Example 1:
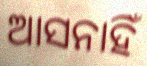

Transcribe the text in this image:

ଆସନାହିଁ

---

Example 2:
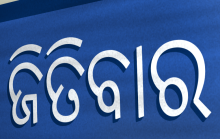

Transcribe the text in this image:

ଜିତିବାର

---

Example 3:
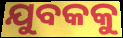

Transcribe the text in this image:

ଯୁବକକୁ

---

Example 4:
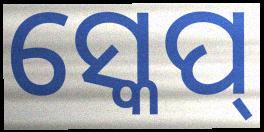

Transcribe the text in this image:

ସ୍କେପ୍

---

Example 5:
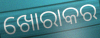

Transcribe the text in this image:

ଖୋରାକର